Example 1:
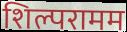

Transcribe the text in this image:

शिल्परामम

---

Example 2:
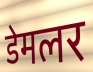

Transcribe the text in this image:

डेमलर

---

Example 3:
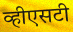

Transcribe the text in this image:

व्हीएसटी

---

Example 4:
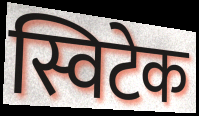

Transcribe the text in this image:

स्विटेक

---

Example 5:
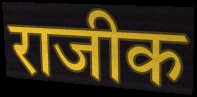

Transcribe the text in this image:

राजीक